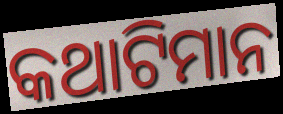
କଥାଟିମାନ